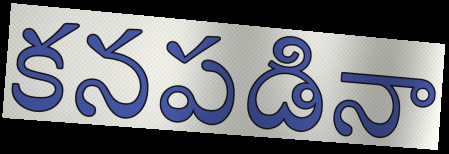
కనపడినా